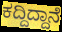
ಕದ್ದಿದ್ದಾನೆ